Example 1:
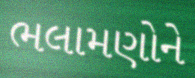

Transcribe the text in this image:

ભલામણોને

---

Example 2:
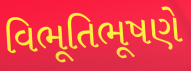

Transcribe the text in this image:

વિભૂતિભૂષણે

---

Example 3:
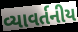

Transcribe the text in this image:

વ્યાવર્તનીય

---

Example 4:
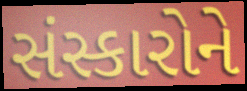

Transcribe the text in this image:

સંસ્કારોને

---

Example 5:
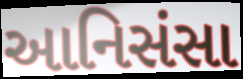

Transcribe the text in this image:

આનિસંસા